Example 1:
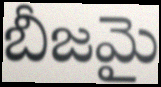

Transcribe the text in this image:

బీజమై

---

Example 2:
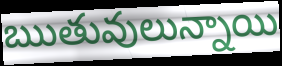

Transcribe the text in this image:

ఋతువులున్నాయి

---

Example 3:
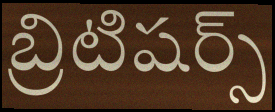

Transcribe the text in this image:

బ్రిటిషర్స్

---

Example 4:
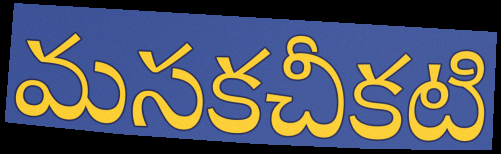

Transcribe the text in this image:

మసకచీకటి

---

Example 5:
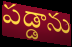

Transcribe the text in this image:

పడ్డాను